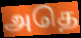
அதெ